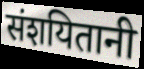
संशयितानी